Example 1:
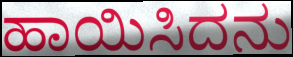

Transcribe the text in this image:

ಹಾಯಿಸಿದನು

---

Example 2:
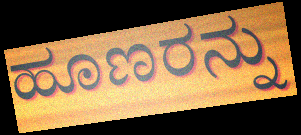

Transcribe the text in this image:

ಹೂಣರನ್ನು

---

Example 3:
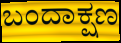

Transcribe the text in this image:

ಬಂದಾಕ್ಷಣ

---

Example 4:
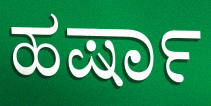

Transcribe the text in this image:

ಹರ್ಷಾ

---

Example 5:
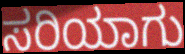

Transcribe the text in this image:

ಸರಿಯಾಗು